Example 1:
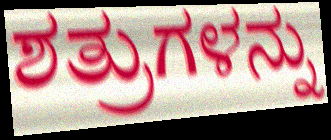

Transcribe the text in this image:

ಶತ್ರುಗಳನ್ನು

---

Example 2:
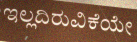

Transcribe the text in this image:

ಇಲ್ಲದಿರುವಿಕೆಯೇ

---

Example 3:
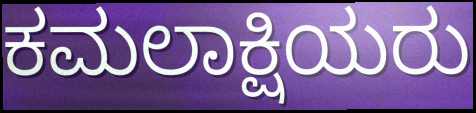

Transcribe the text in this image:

ಕಮಲಾಕ್ಷಿಯರು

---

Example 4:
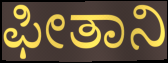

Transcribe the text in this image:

ಫೀತಾನಿ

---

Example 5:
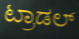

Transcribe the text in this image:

ಟ್ರಾಡಲ್